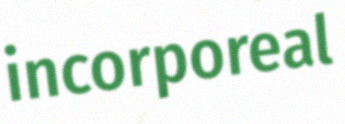
incorporeal